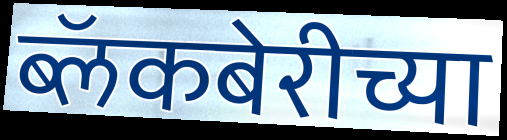
ब्लॅकबेरीच्या